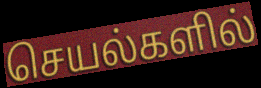
செயல்களில்